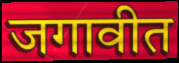
जगावीत